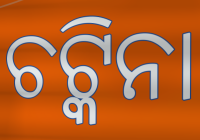
ଚଟ୍କିନା